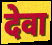
देवा